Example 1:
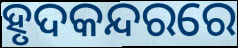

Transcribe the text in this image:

ହୃଦକନ୍ଦରରେ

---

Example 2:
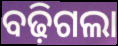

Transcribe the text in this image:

ବଢ଼ିଗଲା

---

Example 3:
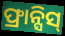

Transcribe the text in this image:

ଫ୍ରାନ୍ସିସ୍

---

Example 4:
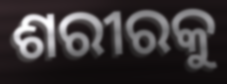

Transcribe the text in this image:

ଶରୀରକୁ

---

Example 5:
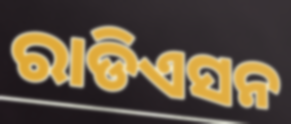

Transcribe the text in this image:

ରାଡିଏସନ